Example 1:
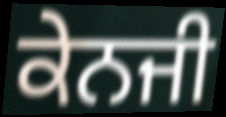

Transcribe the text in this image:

ਕੇਨਜੀ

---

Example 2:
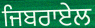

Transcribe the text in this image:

ਜਿਬਰਾਏਲ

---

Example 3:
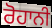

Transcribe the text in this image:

ਰੋਹਾਨੀ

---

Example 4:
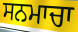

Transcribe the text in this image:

ਸਨਮਾਚਾ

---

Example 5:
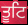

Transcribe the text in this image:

ਤੂਟਿ